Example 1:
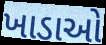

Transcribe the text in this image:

ખાડાઓ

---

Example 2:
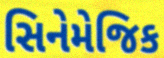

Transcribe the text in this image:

સિનેમેજિક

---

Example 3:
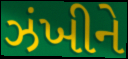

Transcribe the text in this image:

ઝંખીને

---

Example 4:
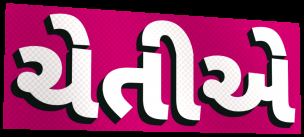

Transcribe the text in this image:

ચેતીએ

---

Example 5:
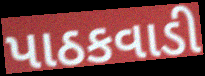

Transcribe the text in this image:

પાઠકવાડી